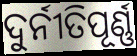
ଦୁର୍ନୀତିପୂର୍ଣ୍ଣ